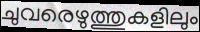
ചുവരെഴുത്തുകളിലും